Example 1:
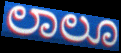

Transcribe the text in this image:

ಲಾಲೂ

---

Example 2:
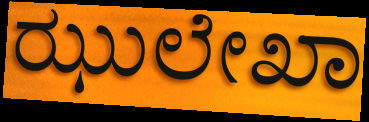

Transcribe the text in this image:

ಝುಲೇಖಾ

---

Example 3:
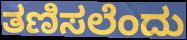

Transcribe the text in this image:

ತಣಿಸಲೆಂದು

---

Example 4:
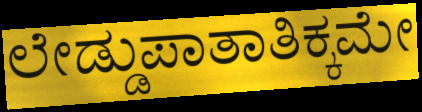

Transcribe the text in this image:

ಲೇಡ್ಡುಪಾತಾತಿಕ್ಕಮೇ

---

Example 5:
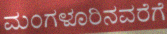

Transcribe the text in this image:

ಮಂಗಳೂರಿನವರೆಗೆ